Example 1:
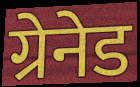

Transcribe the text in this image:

ग्रेनेड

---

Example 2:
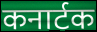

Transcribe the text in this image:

कनार्टक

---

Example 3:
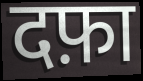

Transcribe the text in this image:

दफ़ा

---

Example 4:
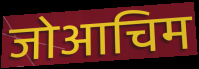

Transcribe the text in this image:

जोआचिम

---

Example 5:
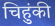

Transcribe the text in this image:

चिहुंकी